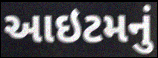
આઇટમનું